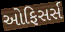
ઓફિસર્સ